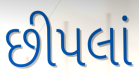
છીપલાં